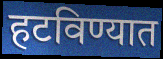
हटविण्यात